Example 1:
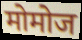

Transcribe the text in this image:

मोमोज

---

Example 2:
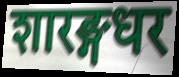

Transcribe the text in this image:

शारङ्गधर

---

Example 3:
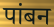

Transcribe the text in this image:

पांबन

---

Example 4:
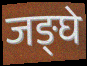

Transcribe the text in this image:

जङ्घे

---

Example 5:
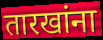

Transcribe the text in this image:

तारखांना